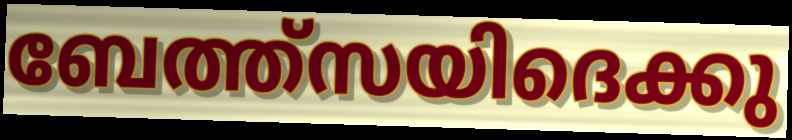
ബേത്ത്സയിദെക്കു